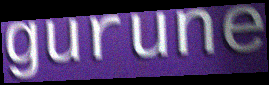
gurune